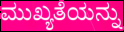
ಮುಖ್ಯತೆಯನ್ನು